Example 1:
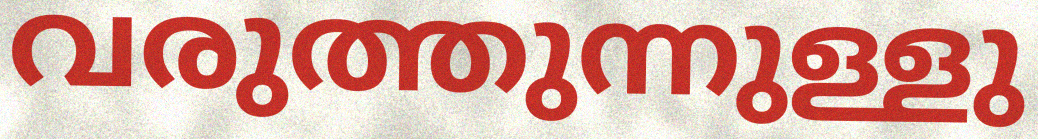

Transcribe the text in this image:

വരുത്തുന്നുള്ളു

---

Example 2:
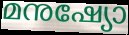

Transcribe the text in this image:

മനുഷ്യോ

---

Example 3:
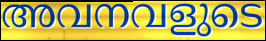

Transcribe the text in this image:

അവനവളുടെ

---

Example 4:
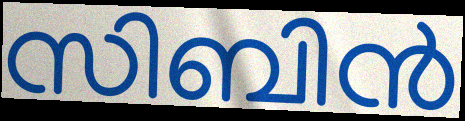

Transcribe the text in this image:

സിബിൻ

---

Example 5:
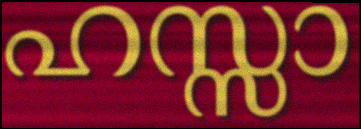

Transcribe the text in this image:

ഹസ്സാ